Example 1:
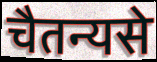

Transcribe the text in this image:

चैतन्यसे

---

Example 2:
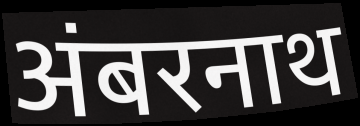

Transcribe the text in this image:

अंबरनाथ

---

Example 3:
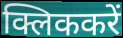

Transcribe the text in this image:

क्लिककरें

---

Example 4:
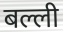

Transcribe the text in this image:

बल्ली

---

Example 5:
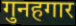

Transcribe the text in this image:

गुनहगार